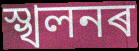
স্খলনৰ